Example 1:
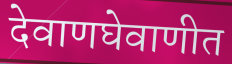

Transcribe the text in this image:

देवाणघेवाणीत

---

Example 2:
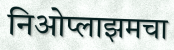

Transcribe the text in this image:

निओप्लाझमचा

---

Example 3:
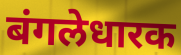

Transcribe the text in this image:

बंगलेधारक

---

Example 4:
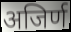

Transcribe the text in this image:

अजिर्ण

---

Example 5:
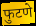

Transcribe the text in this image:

फुटणे